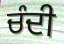
ਚੰਦੀ